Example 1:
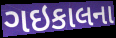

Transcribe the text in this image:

ગઇકાલના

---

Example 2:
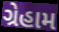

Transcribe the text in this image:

ગ્રેહામ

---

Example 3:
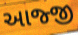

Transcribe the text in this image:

આજ્જી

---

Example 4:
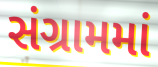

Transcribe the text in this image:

સંગ્રામમાં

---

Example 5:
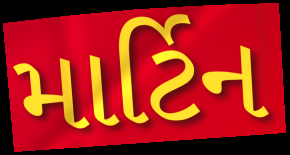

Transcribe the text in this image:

માર્ટિન